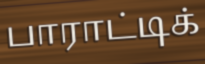
பாராட்டிக்